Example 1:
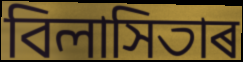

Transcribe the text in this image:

বিলাসিতাৰ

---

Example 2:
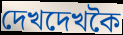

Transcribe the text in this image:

দেখদেখকৈ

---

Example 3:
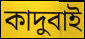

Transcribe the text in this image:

কাদুবাই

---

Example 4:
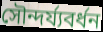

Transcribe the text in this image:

সৌন্দৰ্য্যবৰ্ধন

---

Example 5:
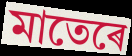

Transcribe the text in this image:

মাতেৰে